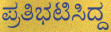
ಪ್ರತಿಭಟಿಸಿದ್ದ